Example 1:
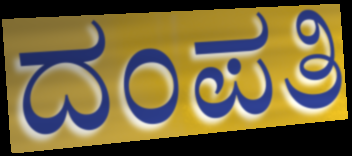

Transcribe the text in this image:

ದಂಪತಿ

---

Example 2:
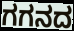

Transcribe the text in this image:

ಗಗನದ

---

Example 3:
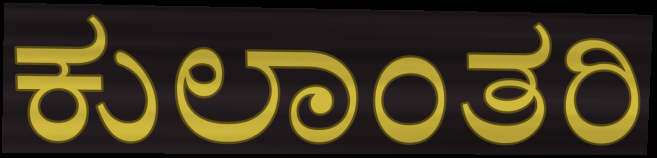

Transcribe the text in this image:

ಕುಲಾಂತರಿ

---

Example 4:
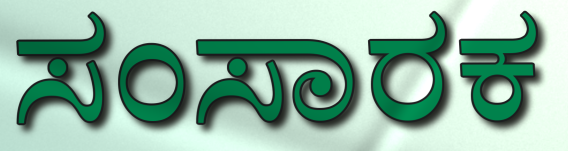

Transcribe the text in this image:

ಸಂಸಾರಕ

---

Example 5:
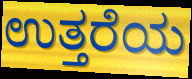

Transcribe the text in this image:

ಉತ್ತರೆಯ